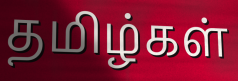
தமிழ்கள்